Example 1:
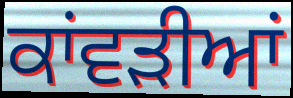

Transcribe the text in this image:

ਕਾਂਵੜੀਆਂ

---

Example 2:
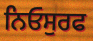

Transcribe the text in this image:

ਨਿਓਸੁਰਫ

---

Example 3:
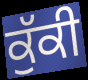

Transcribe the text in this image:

ਕੁੱਕੀ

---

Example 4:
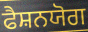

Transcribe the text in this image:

ਫੈਸ਼ਨਯੋਗ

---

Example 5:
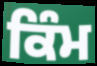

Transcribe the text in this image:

ਕਿੰਮ